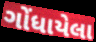
ગોંધાયેલા